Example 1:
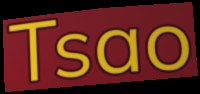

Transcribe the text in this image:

Tsao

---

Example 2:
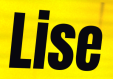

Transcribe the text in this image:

Lise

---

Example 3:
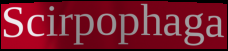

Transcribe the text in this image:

Scirpophaga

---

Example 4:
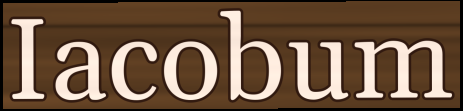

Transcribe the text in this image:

Iacobum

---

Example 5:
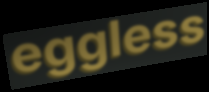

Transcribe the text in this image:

eggless